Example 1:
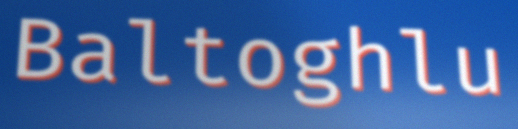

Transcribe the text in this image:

Baltoghlu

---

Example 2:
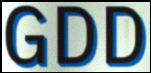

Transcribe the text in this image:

GDD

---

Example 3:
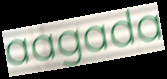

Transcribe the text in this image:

aagada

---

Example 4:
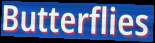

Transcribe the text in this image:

Butterflies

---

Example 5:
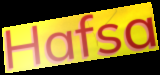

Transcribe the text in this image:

Hafsa